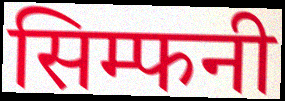
सिम्फनी